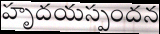
హృదయస్పందన